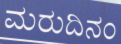
ಮರುದಿನಂ